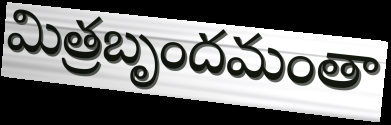
మిత్రబృందమంతా